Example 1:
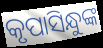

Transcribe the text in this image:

କୃପାସିନ୍ଧୁଙ୍କ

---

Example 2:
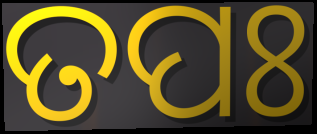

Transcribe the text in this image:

ତପଃ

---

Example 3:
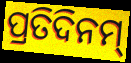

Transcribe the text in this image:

ପ୍ରତିଦିନମ୍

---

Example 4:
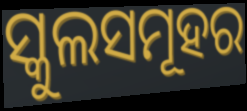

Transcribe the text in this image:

ସ୍କୁଲସମୂହର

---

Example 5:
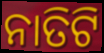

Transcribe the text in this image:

ନାତିଟି